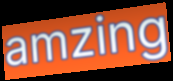
amzing